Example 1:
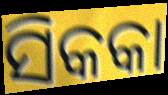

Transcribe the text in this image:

ସିକକା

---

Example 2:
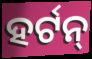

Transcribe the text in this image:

ହର୍ଟନ୍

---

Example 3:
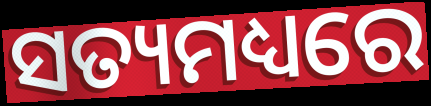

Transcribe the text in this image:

ସତ୍ୟମଧ୍ୟରେ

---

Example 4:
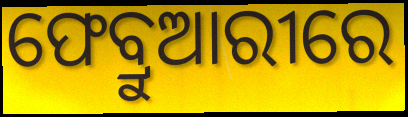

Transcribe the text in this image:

ଫେବ୍ରୁଆରୀରେ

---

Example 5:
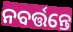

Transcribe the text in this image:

ନବର୍ତ୍ତନ୍ତେ